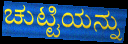
ಚುಟ್ಟಿಯನ್ನು